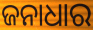
ଜନାଧାର